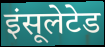
इंसूलेटेड